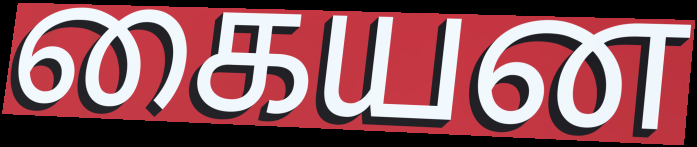
கையன